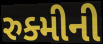
રુક્મીની